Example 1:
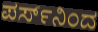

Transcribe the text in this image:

ಪರ್ಸ್‌ನಿಂದ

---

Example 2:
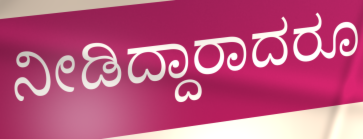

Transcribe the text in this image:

ನೀಡಿದ್ದಾರಾದರೂ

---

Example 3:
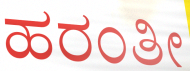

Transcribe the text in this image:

ಹರಂತೀ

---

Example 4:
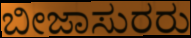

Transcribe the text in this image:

ಬೀಜಾಸುರರು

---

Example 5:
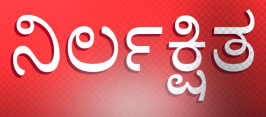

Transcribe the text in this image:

ನಿರ್ಲಕ್ಷಿತ